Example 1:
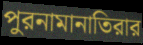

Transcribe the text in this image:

পুরনামানাতিরার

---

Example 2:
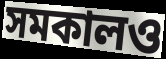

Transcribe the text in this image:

সমকালও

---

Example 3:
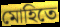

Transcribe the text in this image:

মোহিতে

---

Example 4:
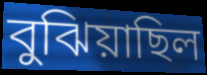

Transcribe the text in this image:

বুঝিয়াছিল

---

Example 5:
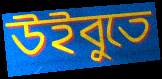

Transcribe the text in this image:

উইবুতে